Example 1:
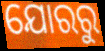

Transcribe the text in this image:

ଯୋରରୁ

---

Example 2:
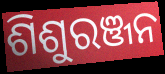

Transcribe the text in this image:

ଶିଶୁରଞ୍ଜନ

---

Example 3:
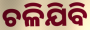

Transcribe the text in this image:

ଚଳିଯିବି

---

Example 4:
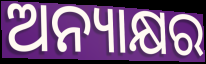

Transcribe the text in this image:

ଅନ୍ୟାକ୍ଷର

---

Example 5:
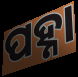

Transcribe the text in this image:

ପହ୍ନା